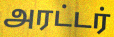
அரட்டர்